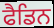
ਫੈਡਿਨ